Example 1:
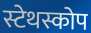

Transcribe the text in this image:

स्टेथस्कोप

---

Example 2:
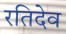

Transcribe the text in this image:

रतिदेव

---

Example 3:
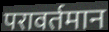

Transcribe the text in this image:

परावर्तमान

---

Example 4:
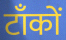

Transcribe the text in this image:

टाँकों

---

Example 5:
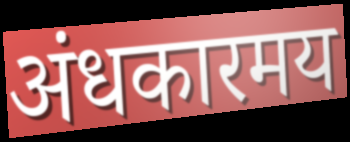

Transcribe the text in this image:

अंधकारमय